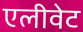
एलीवेट